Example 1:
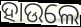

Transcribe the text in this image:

ହାଉଲେ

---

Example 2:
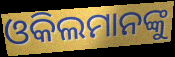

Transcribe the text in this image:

ଓକିଲମାନଙ୍କୁ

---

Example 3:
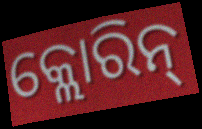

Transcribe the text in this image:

କ୍ଲୋରିନ୍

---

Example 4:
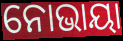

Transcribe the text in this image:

ନୋଭାୟା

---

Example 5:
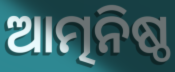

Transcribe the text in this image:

ଆତ୍ମନିଷ୍ଠ